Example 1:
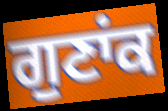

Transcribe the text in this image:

ਗੁਣਾਂਕ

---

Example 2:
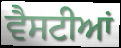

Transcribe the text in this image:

ਵੈਸਟੀਆਂ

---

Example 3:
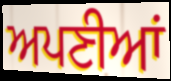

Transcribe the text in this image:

ਅਪਣੀਆਂ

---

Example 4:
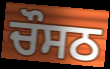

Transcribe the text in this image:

ਚੌਸਠ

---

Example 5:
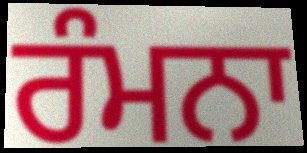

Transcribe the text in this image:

ਰੰਮਨਾ